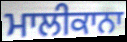
ਮਾਲੀਕਾਨਾ